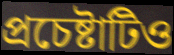
প্রচেষ্টাটিও